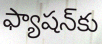
ఫ్యాషన్‌కు